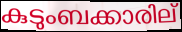
കുടുംബക്കാരില്